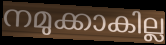
നമുക്കാകില്ല